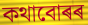
কথাবোৰৰ